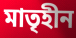
মাতৃহীন